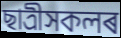
ছাত্ৰীসকলৰ